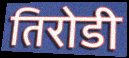
तिरोडी